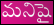
మనిషై